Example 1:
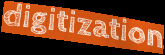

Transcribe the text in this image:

digitization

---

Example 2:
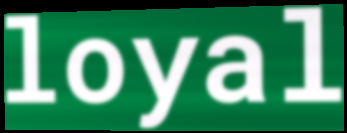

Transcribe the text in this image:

loyal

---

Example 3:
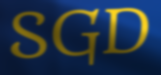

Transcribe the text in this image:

SGD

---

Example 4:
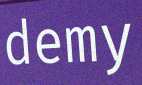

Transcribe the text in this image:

demy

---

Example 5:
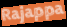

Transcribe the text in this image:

Rajappa